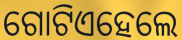
ଗୋଟିଏହେଲେ